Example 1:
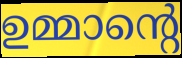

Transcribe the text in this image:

ഉമ്മാന്റെ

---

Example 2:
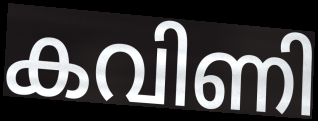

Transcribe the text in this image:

കവിണി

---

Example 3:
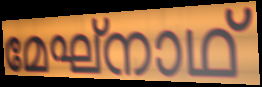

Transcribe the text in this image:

മേഘ്നാഥ്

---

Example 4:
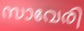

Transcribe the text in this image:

സാവേരി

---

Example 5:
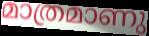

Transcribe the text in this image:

മാത്രമാണു